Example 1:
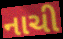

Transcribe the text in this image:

નાચી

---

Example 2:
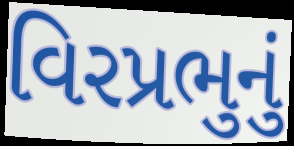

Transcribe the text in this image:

વિરપ્રભુનું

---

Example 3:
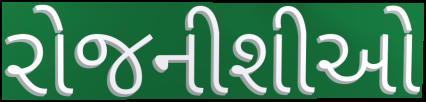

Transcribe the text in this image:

રોજનીશીઓ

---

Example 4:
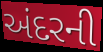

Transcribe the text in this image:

અંદરની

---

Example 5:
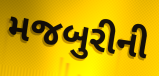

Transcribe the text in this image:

મજબુરીની